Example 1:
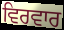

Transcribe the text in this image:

ਵਿਰਵਾਰ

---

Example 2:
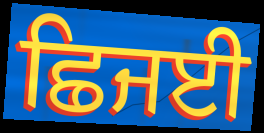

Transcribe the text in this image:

ਛਿਜਈ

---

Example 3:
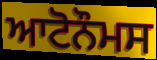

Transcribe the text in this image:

ਆਟੋਨੌਮਸ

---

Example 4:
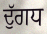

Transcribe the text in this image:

ਦੁੱਗਧ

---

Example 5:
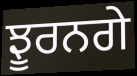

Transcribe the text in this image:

ਝੂਰਨਗੇ